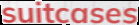
suitcases